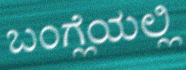
ಬಂಗ್ಲೆಯಲ್ಲಿ